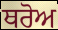
ਥਰੋਅ